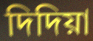
দিদিয়া